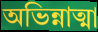
অভিন্নাত্মা